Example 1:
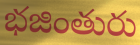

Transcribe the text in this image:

భజింతురు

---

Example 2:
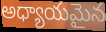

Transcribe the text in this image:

అధ్యాయమైన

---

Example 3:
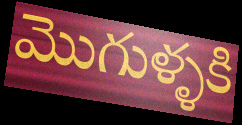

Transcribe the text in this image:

మొగుళ్ళకి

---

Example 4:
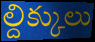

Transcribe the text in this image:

ల్దిక్కులు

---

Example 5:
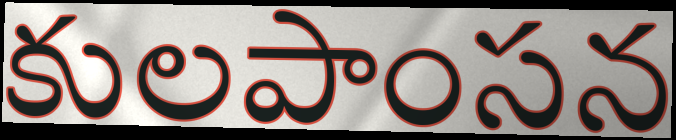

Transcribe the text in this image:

కులపాంసన